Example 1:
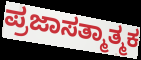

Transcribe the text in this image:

ಪ್ರಜಾಸತ್ಮಾತ್ಮಕ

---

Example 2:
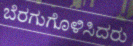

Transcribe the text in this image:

ಬೆರಗುಗೊಳಿಸಿದರು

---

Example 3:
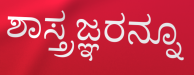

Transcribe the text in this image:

ಶಾಸ್ತ್ರಜ್ಞರನ್ನೂ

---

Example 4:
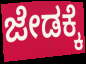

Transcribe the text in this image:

ಜೇಡಕ್ಕೆ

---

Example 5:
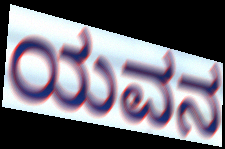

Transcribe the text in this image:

ಯವನ